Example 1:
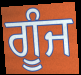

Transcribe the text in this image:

ਗੂੰਜ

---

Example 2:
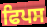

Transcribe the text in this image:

ਫਿਪਸ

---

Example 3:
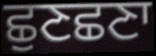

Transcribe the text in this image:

ਛੁਣਛਣਾ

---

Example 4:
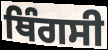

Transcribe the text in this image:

ਥਿੰਗਸੀ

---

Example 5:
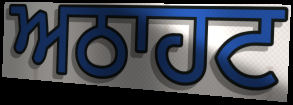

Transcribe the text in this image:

ਅਠਾਹਟ